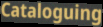
Cataloguing